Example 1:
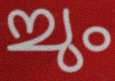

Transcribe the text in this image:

ച്ചും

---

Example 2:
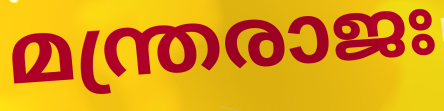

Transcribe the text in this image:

മന്ത്രരാജഃ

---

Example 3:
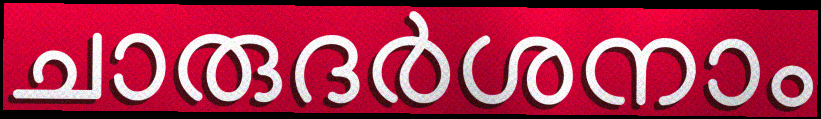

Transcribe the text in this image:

ചാരുദർശനാം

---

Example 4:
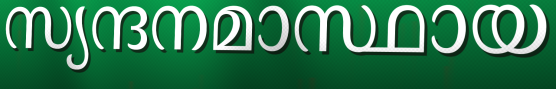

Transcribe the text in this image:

സ്യന്ദനമാസ്ഥായ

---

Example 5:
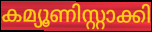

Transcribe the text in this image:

കമ്യൂണിസ്റ്റാക്കി